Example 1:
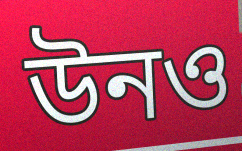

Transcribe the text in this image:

উনও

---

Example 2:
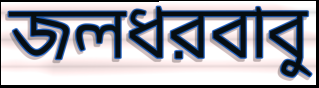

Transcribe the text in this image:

জলধরবাবু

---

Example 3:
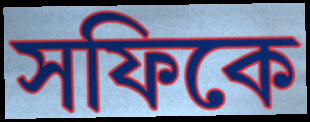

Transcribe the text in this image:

সফিকে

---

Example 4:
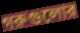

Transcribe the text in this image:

গরুগুলোর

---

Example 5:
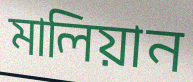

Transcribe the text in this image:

মালিয়ান